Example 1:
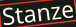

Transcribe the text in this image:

Stanze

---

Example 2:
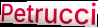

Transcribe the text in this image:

Petrucci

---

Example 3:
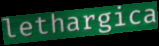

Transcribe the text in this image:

lethargica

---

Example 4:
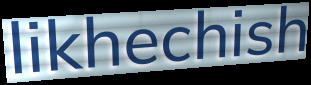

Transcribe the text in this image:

likhechish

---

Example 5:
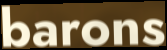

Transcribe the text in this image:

barons